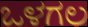
ಒಳಗಲ